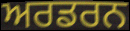
ਅਰਡਰਨ